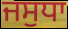
ਜਸੁਧਾ